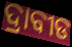
ଦ୍ରାବୀଡ